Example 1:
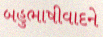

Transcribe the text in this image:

બહુભાષીવાદને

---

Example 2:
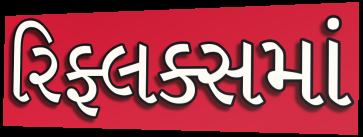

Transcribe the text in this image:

રિફ્લક્સમાં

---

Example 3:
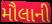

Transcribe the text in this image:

મૌલાની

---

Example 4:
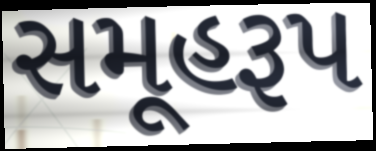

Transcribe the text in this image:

સમૂહરૂપ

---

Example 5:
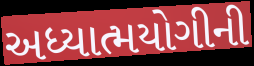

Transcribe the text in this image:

અધ્યાત્મયોગીની